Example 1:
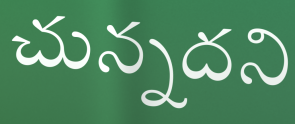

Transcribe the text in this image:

చున్నదని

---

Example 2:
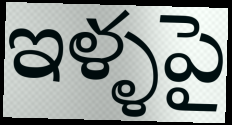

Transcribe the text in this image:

ఇళ్ళపై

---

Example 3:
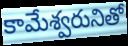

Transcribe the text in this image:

కామేశ్వరునితో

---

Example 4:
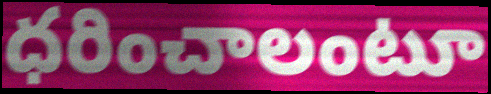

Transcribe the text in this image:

ధరించాలంటూ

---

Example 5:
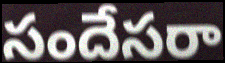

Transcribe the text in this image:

సందేసరా